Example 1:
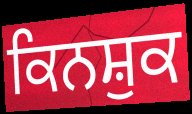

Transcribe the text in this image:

ਕਿਨਸ਼ੁਕ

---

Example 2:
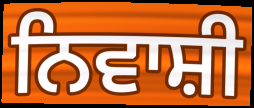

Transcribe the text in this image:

ਨਿਵਾਸ਼ੀ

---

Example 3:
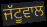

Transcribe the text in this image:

ਜੱਟੂਵਾਲ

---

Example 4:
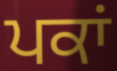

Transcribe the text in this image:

ਪਕਾਂ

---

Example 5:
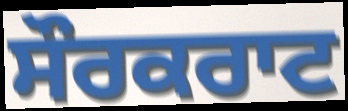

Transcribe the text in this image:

ਸੌਰਕਰਾਟ